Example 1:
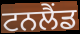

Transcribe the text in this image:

ਟਨਲੈਂਡ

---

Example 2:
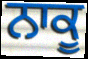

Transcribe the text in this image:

ਨਾਕੂ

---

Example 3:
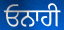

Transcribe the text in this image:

ਓਨਾਹੀ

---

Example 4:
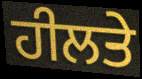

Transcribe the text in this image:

ਹੀਲਤੇ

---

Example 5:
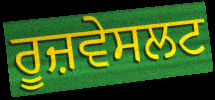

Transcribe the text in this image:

ਰੂਜ਼ਵੇਸਲਟ